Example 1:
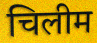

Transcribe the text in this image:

चिलीम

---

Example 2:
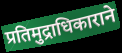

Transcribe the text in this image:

प्रतिमुद्राधिकाराने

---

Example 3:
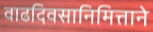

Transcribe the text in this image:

वाढदिवसानिमित्ताने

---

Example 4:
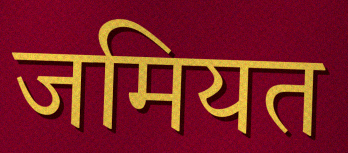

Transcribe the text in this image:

जमियत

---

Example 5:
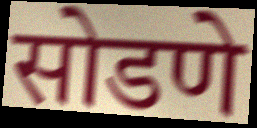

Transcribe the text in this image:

सोडणे